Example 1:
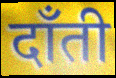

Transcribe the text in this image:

दाँती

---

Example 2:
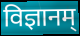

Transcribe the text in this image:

विज्ञानम्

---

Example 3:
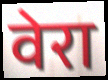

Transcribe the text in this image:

वेरा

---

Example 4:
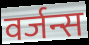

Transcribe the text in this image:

वर्जन्स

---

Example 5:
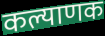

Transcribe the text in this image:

कल्याणक